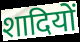
शादियों